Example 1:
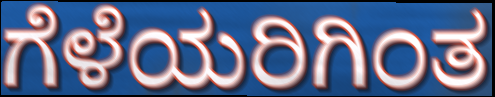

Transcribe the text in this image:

ಗೆಳೆಯರಿಗಿಂತ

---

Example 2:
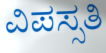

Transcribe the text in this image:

ವಿಪಸ್ಸತಿ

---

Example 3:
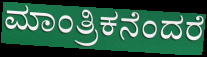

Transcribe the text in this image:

ಮಾಂತ್ರಿಕನೆಂದರೆ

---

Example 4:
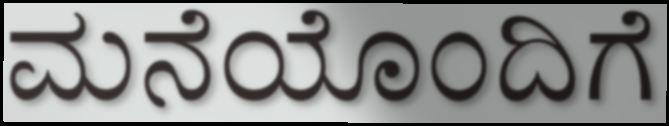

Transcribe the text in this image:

ಮನೆಯೊಂದಿಗೆ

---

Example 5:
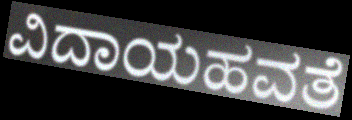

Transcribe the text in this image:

ವಿದಾಯಹವತೆ